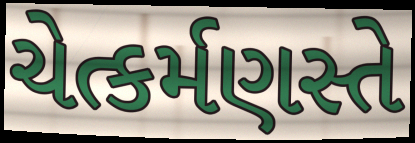
ચેત્કર્મણસ્તે